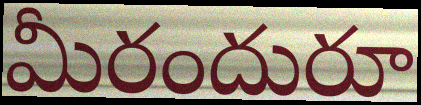
మీరందురూ